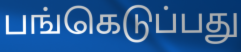
பங்கெடுப்பது